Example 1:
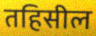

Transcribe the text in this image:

तहिसील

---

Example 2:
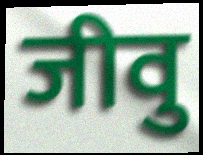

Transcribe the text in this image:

जीवु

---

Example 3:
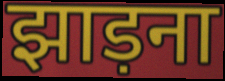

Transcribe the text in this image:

झाड़ना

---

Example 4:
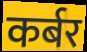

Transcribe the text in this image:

कर्बर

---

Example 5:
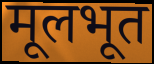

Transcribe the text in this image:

मूलभूत